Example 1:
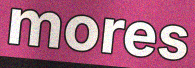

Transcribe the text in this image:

mores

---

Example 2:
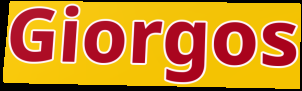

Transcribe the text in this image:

Giorgos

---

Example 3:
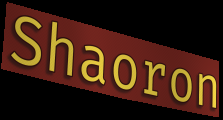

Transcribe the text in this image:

Shaoron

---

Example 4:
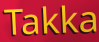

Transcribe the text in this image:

Takka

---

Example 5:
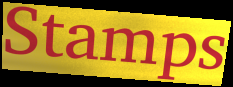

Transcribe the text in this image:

Stamps